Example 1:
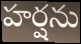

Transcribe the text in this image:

హర్షను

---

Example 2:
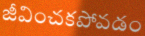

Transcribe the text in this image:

జీవించకపోవడం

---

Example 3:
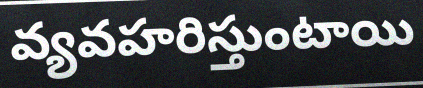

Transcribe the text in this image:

వ్యవహరిస్తుంటాయి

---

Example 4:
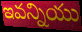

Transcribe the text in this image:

ఇవన్నియు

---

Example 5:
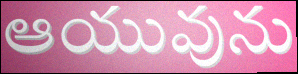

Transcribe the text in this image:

ఆయువును